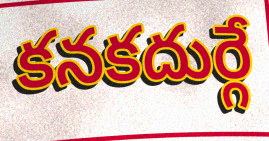
కనకదుర్గే